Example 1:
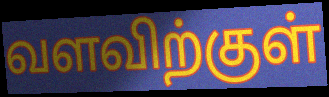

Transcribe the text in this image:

வளவிற்குள்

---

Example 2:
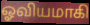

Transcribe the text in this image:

ஓவியமாகி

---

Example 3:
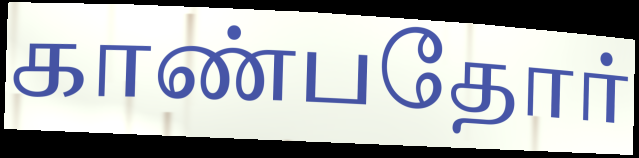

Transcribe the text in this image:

காண்பதோர்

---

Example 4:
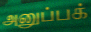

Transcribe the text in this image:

அனுப்பக்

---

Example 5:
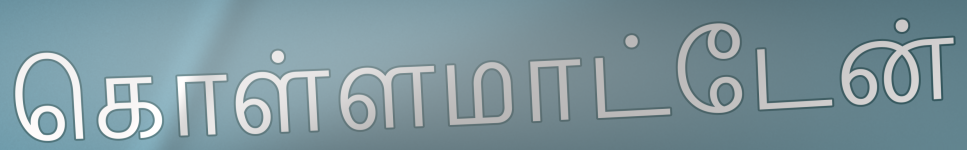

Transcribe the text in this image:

கொள்ளமாட்டேன்